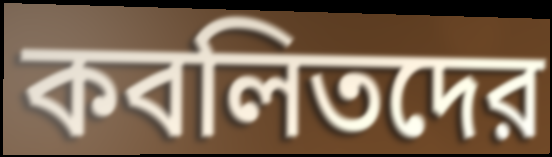
কবলিতদের